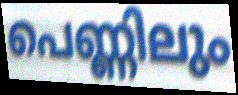
പെണ്ണിലും